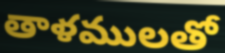
తాళములతో